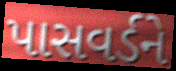
પાસવર્ડને